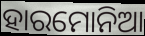
ହାରମୋନିଆ